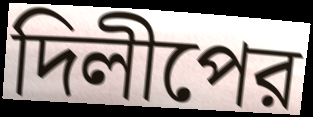
দিলীপের